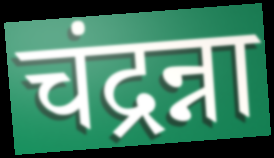
चंद्रन्ना